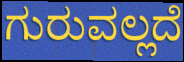
ಗುರುವಲ್ಲದೆ